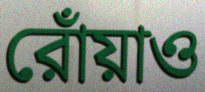
রোঁয়াও